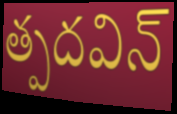
త్పదవిన్